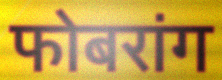
फोबरांग